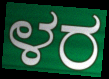
ಳರ